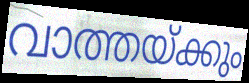
വാത്തയ്ക്കും